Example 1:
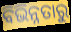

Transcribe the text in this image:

ବିଭିନ୍ନତାରୁ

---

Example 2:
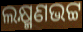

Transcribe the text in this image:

ଲକ୍ଷ୍ମଣଭଟ୍ଟ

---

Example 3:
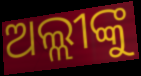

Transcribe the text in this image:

ଅଲ୍ଲୀଙ୍କୁ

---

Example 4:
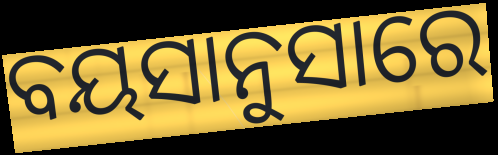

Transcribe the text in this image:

ବୟସାନୁସାରେ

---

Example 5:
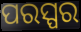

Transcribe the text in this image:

ପରସ୍ପର